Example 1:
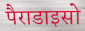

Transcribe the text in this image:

पैराडाइसो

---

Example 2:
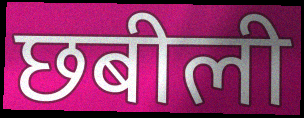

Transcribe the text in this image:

छबीली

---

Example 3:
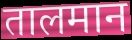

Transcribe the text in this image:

तालमान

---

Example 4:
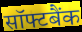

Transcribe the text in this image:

सॉफ्टबैंक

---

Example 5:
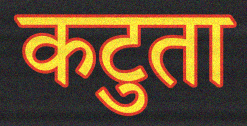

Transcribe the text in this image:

कटुता